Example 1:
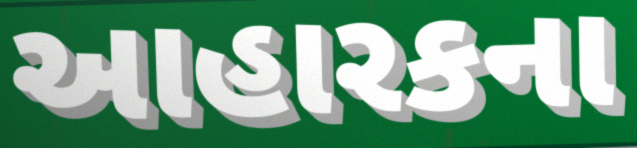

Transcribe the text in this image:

આહારકના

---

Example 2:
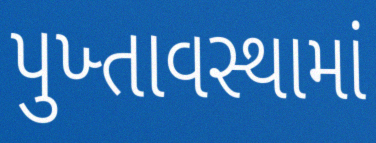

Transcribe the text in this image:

પુખ્તાવસ્થામાં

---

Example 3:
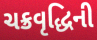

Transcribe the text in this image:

ચક્રવૃદ્ધિની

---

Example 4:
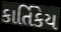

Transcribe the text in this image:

કાર્તિકેય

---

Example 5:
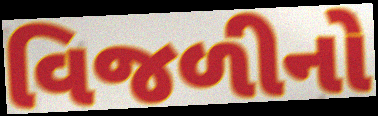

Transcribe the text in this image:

વિજળીનો